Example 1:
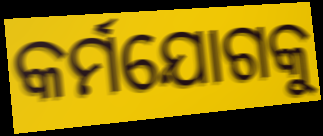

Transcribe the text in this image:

କର୍ମଯୋଗକୁ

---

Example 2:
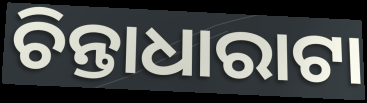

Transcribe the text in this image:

ଚିନ୍ତାଧାରାଟା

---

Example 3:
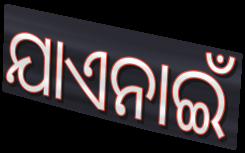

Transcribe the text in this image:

ଯାଏନାଇଁ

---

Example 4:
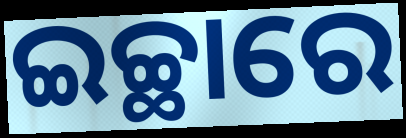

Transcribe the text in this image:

ଇଚ୍ଛାରେ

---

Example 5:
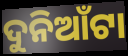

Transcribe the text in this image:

ଦୁନିଆଁଟା